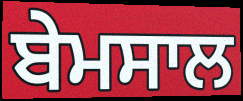
ਬੇਮਸਾਲ